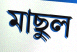
মাছুল